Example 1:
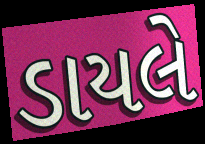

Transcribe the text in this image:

ડાયલે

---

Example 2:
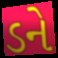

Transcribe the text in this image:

ડને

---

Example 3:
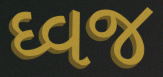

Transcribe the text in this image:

ઘ્વજ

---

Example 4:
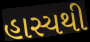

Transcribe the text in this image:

હાસ્યથી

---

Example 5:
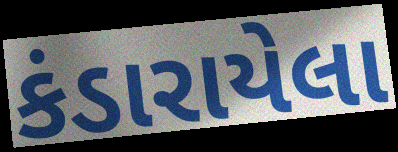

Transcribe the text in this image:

કંડારાયેલા